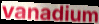
vanadium